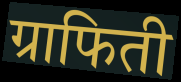
ग्राफिती